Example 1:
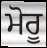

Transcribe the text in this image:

ਮੋਰੂ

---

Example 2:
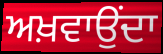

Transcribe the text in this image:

ਅਖ਼ਵਾਉਂਦਾ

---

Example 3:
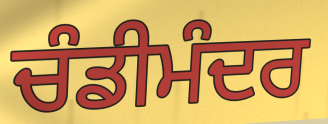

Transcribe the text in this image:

ਚੰਡੀਮੰਦਰ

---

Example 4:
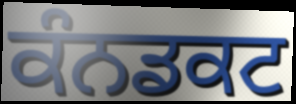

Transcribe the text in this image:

ਕੰਨਡਕਟ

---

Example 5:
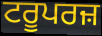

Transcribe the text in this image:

ਟਰੂਪਰਜ਼